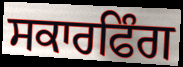
ਸਕਾਰਫਿੰਗ